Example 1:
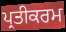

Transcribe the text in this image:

ਪ੍ਰਤੀਕਰਮ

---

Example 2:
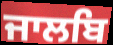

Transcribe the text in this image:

ਜਾਲਬਿ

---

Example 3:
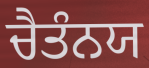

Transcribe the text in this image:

ਚੈਤੰਨਯ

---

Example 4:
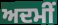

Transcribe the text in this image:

ਅਦਮੀਂ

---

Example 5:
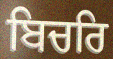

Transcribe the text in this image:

ਬਿਚਰਿ